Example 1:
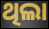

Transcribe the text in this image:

ଥିଲା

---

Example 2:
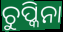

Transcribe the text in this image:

ଚୁପ୍କିନା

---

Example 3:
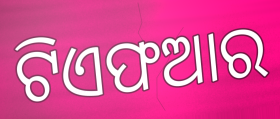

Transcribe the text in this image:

ଟିଏଫଆର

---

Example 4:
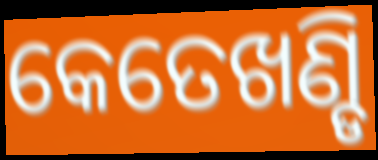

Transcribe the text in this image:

କେତେଖଣ୍ଡି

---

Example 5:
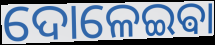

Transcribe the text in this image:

ଦୋଳେଇଵା